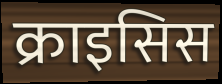
क्राइसिस